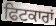
ਫਿਟਕਾਰਾਂ